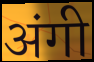
अंगी